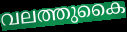
വലത്തുകൈ